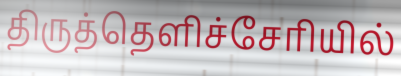
திருத்தெளிச்சேரியில்